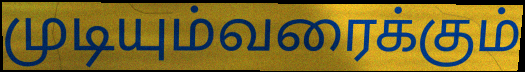
முடியும்வரைக்கும்